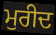
ਮੁਰੀਦ